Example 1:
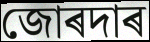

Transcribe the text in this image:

জোৰদাৰ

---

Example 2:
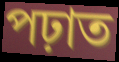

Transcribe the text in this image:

পঢ়াত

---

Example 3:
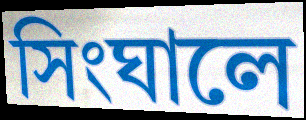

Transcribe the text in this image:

সিংঘালে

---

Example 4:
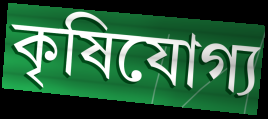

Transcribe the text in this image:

কৃষিযোগ্য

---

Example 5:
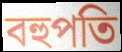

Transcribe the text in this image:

বহুপতি